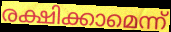
രക്ഷിക്കാമെന്ന്